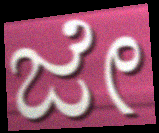
ಜೇ